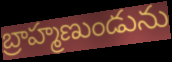
బ్రాహ్మణుండును